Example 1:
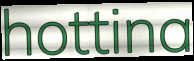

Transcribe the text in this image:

hottina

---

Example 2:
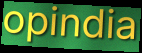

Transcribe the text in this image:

opindia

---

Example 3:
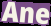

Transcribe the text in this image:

Ane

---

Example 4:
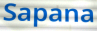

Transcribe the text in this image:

Sapana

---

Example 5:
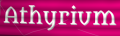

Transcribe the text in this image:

Athyrium